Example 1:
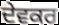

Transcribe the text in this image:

ਦੇਵਕਰ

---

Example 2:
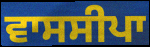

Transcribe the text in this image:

ਵਾਸਸੀਪਾ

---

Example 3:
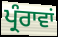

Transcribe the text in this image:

ਪ੍ਰੰਰਾਵਾਂ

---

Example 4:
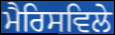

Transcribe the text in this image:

ਮੈਰਿਸਵਿਲੇ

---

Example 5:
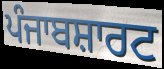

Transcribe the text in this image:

ਪੰਜਾਬਸ਼ਾਰਟ